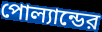
পোল্যান্ডের